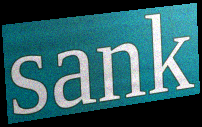
sank